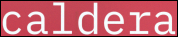
caldera